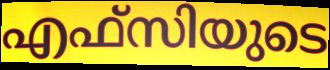
എഫ്സിയുടെ